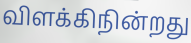
விளக்கிநின்றது